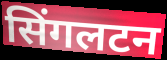
सिंगलटन